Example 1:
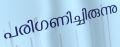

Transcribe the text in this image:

പരിഗണിച്ചിരുന്നു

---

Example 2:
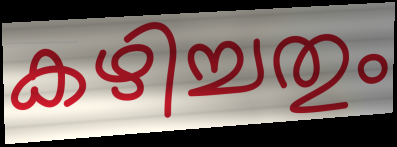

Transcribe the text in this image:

കഴിച്ചതും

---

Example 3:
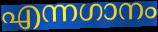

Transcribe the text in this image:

എന്നഗാനം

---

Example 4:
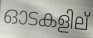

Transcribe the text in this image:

ഓടകളില്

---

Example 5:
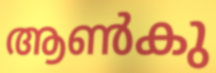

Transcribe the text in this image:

ആൺകു